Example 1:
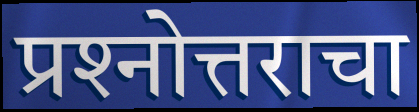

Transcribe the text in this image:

प्रश्‍नोत्तराचा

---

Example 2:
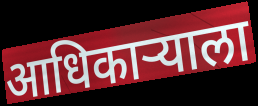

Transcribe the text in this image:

आधिकाऱ्याला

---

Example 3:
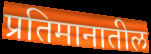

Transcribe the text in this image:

प्रतिमानातील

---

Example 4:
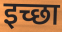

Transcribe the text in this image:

इच्छा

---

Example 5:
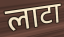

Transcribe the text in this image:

लाटा